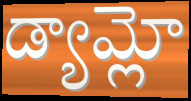
డ్యామ్లో